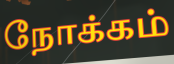
நோக்கம்